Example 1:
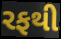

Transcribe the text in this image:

રફથી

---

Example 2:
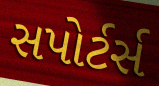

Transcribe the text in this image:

સપોર્ટર્સ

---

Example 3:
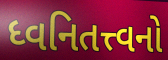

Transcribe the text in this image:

ધ્વનિતત્ત્વનો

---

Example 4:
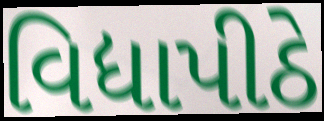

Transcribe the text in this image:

વિદ્યાપીઠે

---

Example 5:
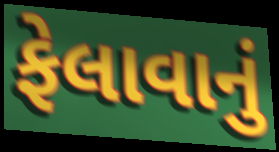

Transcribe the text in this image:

ફેલાવાનું